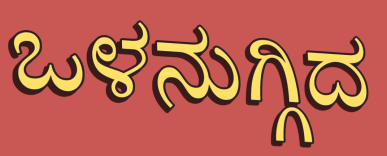
ಒಳನುಗ್ಗಿದ